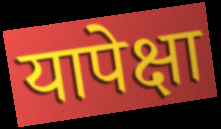
यापेक्षा